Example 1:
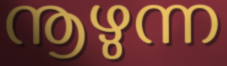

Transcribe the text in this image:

നൂഴുന്ന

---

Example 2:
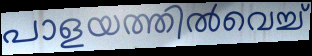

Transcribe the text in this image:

പാളയത്തിൽവെച്ച്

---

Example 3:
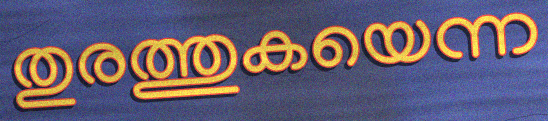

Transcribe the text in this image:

തുരത്തുകയെന്ന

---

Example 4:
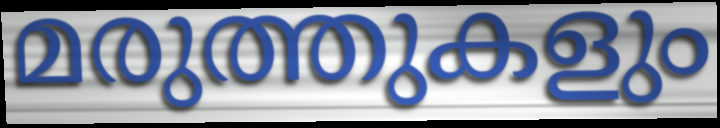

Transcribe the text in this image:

മരുത്തുകളും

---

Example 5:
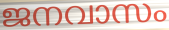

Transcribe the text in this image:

ജനവാസം